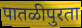
पातळीपुरता